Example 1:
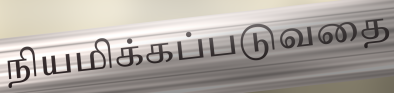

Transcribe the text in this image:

நியமிக்கப்படுவதை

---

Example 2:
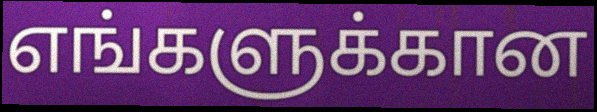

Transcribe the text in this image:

எங்களுக்கான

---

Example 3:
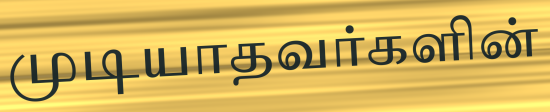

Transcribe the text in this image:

முடியாதவர்களின்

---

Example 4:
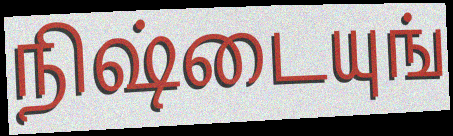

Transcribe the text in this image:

நிஷ்டையுங்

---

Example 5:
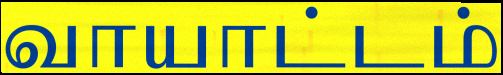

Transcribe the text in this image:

வாயாட்டம்